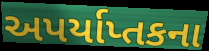
અપર્યાપ્તકના